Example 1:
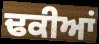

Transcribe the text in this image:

ਢਕੀਆਂ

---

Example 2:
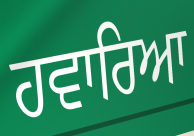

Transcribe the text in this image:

ਹਵਾਰਿਆ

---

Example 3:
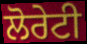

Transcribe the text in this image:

ਲੋਰੇਟੀ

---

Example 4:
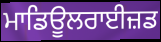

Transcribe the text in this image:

ਮਾਡਿਊਲਰਾਈਜ਼ਡ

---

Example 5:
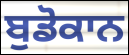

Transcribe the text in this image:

ਬੁਡੋਕਾਨ